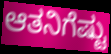
ಆತನಿಗೆಷ್ಟು